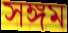
সঙ্গম